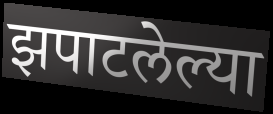
झपाटलेल्या